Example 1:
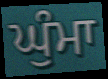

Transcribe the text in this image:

ਘੁੰਮਾ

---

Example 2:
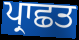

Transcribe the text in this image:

ਪ੍ਰਾਛਤ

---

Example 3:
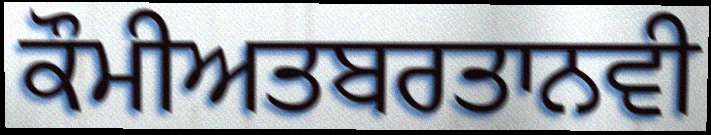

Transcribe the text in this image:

ਕੌਮੀਅਤਬਰਤਾਨਵੀ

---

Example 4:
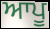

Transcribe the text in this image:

ਆਪੂ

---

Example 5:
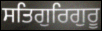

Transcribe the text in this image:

ਸਤਿਗੁਰਿਗੁਰੂ